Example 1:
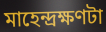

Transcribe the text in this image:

মাহেন্দ্রক্ষণটা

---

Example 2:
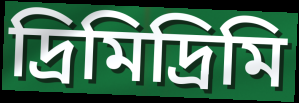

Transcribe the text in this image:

দ্রিমিদ্রিমি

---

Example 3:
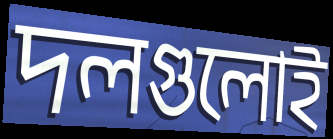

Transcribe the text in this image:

দলগুলোই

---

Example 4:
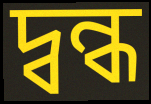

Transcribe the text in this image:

দ্বন্ধ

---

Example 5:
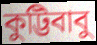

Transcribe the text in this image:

কুট্টিবাবু